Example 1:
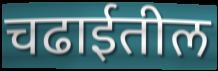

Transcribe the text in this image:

चढाईतील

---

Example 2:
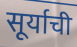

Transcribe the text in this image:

सूर्याची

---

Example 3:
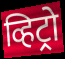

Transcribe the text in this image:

व्हिट्रो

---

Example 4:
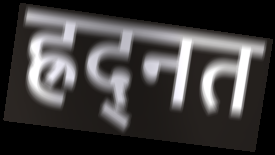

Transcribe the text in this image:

ह्रद्नत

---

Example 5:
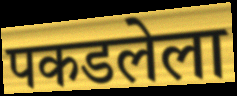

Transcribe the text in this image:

पकडलेला